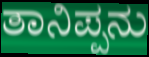
ತಾನಿಪ್ಪನು